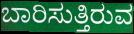
ಬಾರಿಸುತ್ತಿರುವ